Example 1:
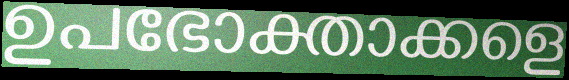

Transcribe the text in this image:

ഉപഭോക്താക്കളെ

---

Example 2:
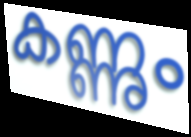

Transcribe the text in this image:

കണ്ണും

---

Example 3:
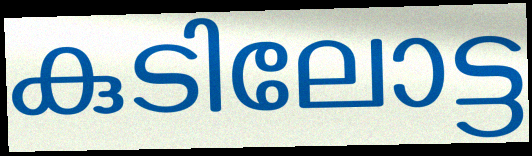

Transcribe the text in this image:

കുടിലോട്ട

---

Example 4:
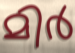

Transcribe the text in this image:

മിർ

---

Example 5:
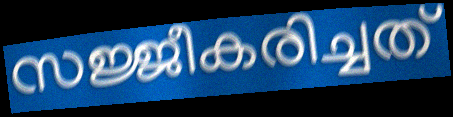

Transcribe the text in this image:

സജ്ജീകരിച്ചത്